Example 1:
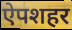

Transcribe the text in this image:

ऐपशहर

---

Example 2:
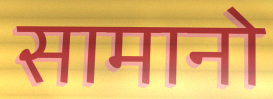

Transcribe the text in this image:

सामानो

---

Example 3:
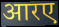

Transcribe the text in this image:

आरए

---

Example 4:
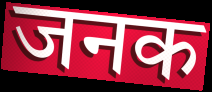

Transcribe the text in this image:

जनक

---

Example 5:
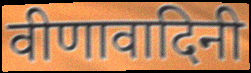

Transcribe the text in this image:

वीणावादिनी